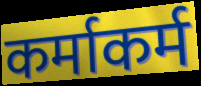
कर्माकर्म